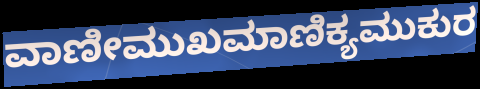
ವಾಣೀಮುಖಮಾಣಿಕ್ಯಮುಕುರ